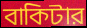
বাকিটার